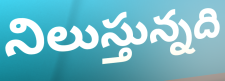
నిలుస్తున్నది